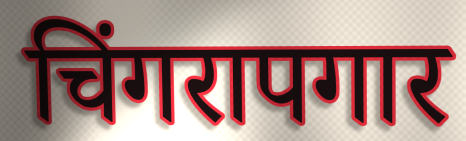
चिंगरापगार